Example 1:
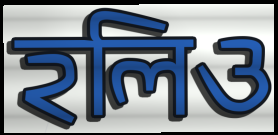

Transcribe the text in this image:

হলিও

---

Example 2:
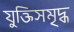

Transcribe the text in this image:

যুক্তিসমৃদ্ধ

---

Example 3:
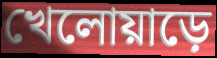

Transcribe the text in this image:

খেলোয়াড়ে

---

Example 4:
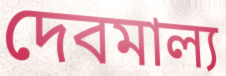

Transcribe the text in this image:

দেবমাল্য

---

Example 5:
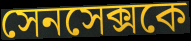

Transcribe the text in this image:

সেনসেক্সকে